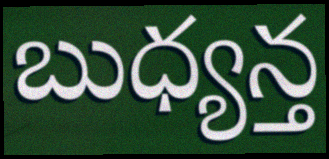
బుధ్యన్త